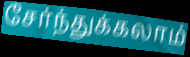
சேர்ந்துக்கலாம்